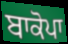
ਬਾਕੋਪਾ